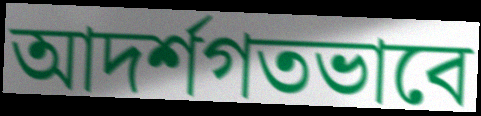
আদর্শগতভাবে